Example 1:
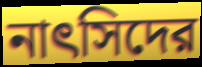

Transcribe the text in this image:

নাৎসিদের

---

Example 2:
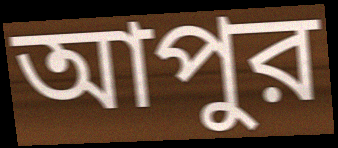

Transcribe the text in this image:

আপুর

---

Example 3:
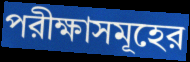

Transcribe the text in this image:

পরীক্ষাসমূহের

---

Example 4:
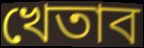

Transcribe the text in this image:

খেতাব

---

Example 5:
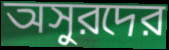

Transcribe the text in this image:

অসুরদের